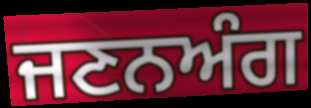
ਜਣਨਅੰਗ